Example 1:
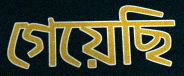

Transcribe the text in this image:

গেয়েছি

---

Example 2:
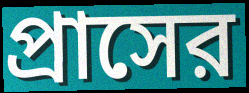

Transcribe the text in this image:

প্রাসের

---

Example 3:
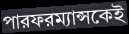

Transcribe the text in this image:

পারফরম্যান্সকেই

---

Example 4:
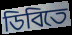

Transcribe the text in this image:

ডিবিতে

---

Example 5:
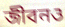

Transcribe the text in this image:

জীবনও